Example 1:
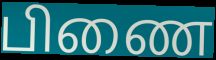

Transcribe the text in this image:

பிணை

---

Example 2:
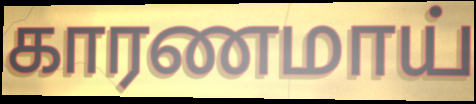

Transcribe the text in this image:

காரணமாய்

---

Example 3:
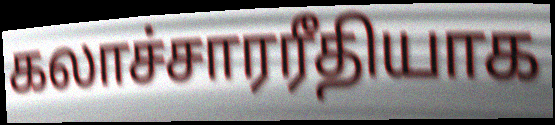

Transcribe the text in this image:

கலாச்சாரரீதியாக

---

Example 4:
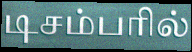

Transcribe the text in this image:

டிசம்பரில்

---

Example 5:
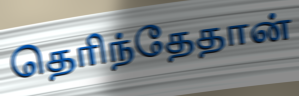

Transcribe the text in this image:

தெரிந்தேதான்